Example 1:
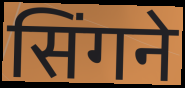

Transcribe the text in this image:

सिंगने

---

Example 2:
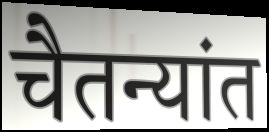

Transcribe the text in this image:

चैतन्यांत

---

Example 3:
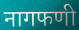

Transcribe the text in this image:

नागफणी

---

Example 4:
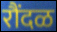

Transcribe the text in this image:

रौंदळ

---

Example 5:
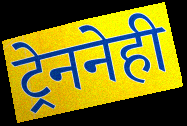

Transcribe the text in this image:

ट्रेननेही